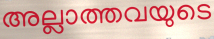
അല്ലാത്തവയുടെ